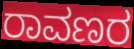
ರಾವಣರ